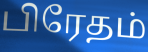
பிரேதம்